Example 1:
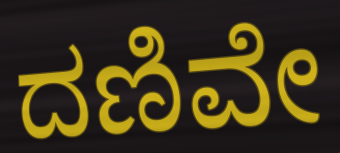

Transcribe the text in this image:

ದಣಿವೇ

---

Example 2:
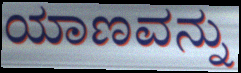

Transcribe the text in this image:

ಯಾಣವನ್ನು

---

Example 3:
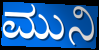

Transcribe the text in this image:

ಮುನಿ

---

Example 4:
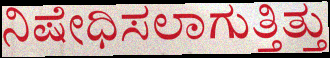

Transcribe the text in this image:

ನಿಷೇಧಿಸಲಾಗುತ್ತಿತ್ತು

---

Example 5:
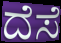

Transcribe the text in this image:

ದೆಸೆ